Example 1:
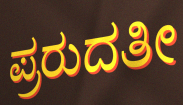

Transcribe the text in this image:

ಪ್ರರುದತೀ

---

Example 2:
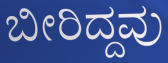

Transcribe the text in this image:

ಬೀರಿದ್ದವು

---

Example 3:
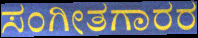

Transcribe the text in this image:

ಸಂಗೀತಗಾರರ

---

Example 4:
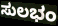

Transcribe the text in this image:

ಸುಲಭಂ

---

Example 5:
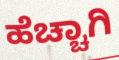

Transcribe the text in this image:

ಹೆಚ್ಚಾಗಿ